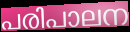
പരിപാലന